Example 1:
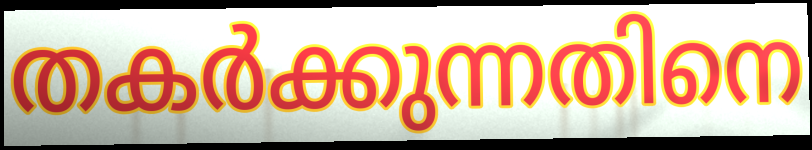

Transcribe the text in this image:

തകർക്കുന്നതിനെ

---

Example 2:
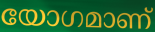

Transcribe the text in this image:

യോഗമാണ്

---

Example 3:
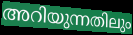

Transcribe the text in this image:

അറിയുന്നതിലും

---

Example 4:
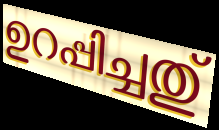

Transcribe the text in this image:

ഉറപ്പിച്ചതു്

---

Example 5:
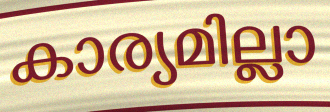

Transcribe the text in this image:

കാര്യമില്ലാ